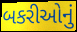
બકરીઓનું